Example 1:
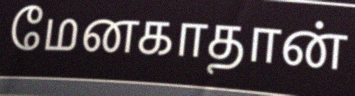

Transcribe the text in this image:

மேனகாதான்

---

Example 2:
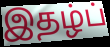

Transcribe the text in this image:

இதழ்ப்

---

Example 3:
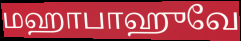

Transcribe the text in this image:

மஹாபாஹுவே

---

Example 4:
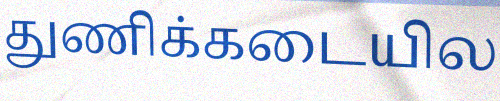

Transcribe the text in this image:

துணிக்கடையில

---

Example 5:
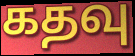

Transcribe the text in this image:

கதவு